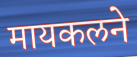
मायकलने